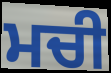
ਮਚੀ